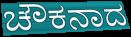
ಚೌಕನಾದ